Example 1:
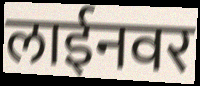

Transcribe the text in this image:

लाईनवर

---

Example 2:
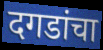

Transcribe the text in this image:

दगडांचा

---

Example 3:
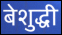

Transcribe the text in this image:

बेशुद्धी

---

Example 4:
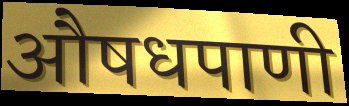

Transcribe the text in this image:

औषधपाणी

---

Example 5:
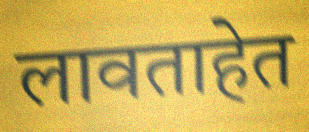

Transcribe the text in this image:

लावताहेत